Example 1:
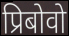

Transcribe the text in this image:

प्रिबोवो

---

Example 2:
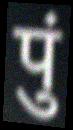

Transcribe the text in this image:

पुं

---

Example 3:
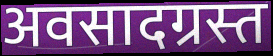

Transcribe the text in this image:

अवसादग्रस्त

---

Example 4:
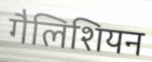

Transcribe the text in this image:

गैलिशियन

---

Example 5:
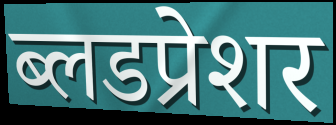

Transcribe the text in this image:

ब्लडप्रेशर